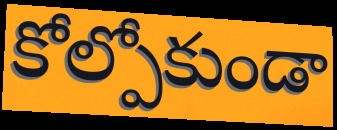
కోల్పోకుండా